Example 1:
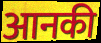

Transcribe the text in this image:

आनकी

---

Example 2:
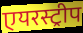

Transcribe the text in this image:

एयरस्ट्रीप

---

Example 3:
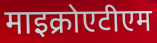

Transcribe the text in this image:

माइक्रोएटीएम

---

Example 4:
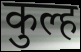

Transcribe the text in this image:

कुल्ह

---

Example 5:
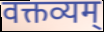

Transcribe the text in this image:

वक्तव्यम्